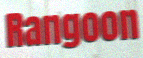
Rangoon